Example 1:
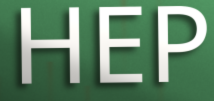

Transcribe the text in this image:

HEP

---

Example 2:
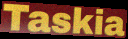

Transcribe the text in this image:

Taskia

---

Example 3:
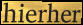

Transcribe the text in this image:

hierher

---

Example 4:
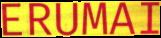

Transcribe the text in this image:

ERUMAI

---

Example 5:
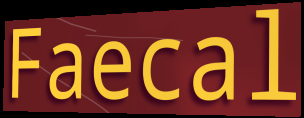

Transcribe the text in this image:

Faecal